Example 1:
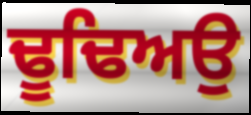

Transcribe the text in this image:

ਢੂਢਿਅਉ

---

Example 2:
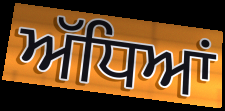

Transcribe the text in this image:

ਅੱਧਿਆਂ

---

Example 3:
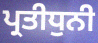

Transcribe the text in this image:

ਪ੍ਰਤੀਧੁਨੀ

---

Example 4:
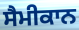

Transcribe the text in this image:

ਸੈਮੀਕਾਨ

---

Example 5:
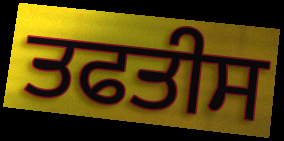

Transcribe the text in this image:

ਤਫਤੀਸ